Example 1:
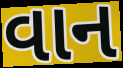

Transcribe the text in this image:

વાન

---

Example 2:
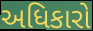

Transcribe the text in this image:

અધિકારો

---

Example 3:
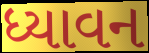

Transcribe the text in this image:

ધ્યાવન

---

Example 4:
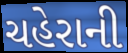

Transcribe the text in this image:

ચહેરાની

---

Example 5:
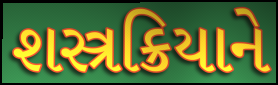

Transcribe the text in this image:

શસ્ત્રક્રિયાને